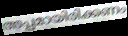
അപ്പമായിരിക്കണം